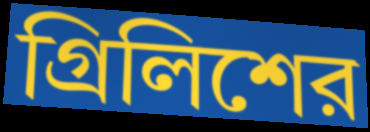
গ্রিলিশের